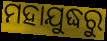
ମହାଯୁଦ୍ଧରୁ